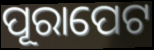
ପୂରାପେଟ